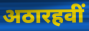
अठारहवीं